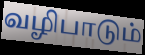
வழிபாடும்